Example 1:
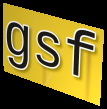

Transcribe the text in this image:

gsf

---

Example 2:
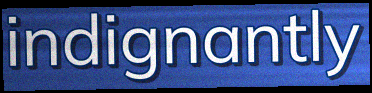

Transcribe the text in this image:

indignantly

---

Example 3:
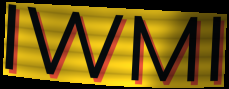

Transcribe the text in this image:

IWMI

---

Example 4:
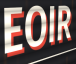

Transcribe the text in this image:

EOIR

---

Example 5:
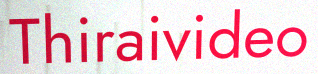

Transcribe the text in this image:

Thiraivideo